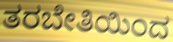
ತರಬೇತಿಯಿಂದ